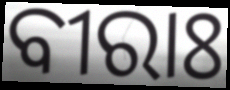
ବୀରାଃ